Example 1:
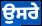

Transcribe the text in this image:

ਉਸਰੇ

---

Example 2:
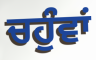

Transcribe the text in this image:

ਚਹੁੰਵਾਂ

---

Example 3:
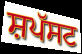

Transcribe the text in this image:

ਸ਼ਪੱਸਟ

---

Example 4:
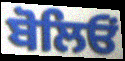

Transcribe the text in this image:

ਬੋਲਿਓਂ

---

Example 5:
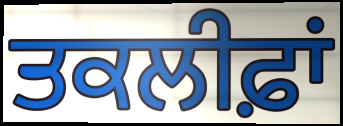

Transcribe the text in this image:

ਤਕਲੀਫ਼ਾਂ